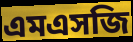
এমএসজি